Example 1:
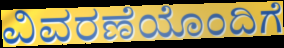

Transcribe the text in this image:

ವಿವರಣೆಯೊಂದಿಗೆ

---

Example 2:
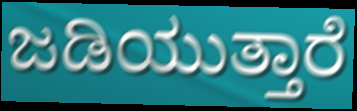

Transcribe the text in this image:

ಜಡಿಯುತ್ತಾರೆ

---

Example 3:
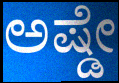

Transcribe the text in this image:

ಅಷ್ಡೇ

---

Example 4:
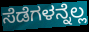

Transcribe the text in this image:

ಸೆಡೆಗಳನ್ನೆಲ್ಲ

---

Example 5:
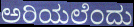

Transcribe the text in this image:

ಅರಿಯಲೆಂದು